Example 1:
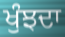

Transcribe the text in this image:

ਖੁੰਝਦਾ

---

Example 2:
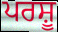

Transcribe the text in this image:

ਪਰਸ਼ੂ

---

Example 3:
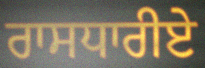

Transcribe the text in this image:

ਰਾਸਧਾਰੀਏ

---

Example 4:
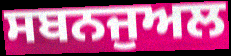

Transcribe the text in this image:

ਸਬਨਜੁਅਲ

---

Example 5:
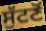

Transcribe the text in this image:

ਸੁੱਟਣੋਂ